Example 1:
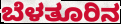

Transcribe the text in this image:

ಬೆಳತೂರಿನ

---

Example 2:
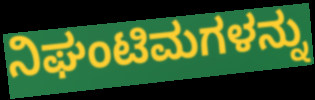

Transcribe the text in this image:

ನಿಘಂಟಿಮಗಳನ್ನು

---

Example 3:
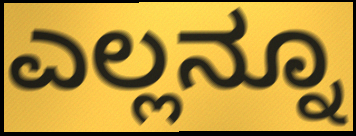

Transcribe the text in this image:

ಎಲ್ಲನ್ನೂ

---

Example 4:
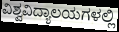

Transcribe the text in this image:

ವಿಶ್ವವಿದ್ಯಾಲಯಗಳಲ್ಲಿ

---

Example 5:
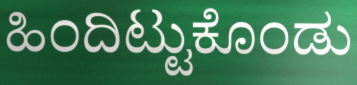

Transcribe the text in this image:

ಹಿಂದಿಟ್ಟುಕೊಂಡು